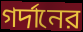
গর্দানের